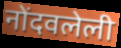
नोंदवलेली